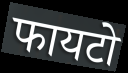
फायटो